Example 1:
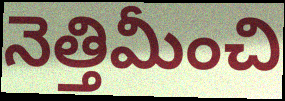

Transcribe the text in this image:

నెత్తిమీంచి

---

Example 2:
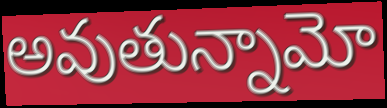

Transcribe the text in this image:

అవుతున్నామో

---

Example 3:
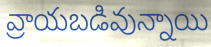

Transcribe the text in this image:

వ్రాయబడివున్నాయి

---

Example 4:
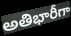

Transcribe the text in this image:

అతిభారీగా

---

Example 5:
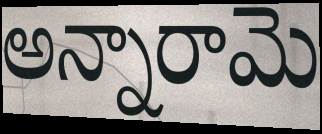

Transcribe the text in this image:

అన్నారామె